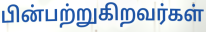
பின்பற்றுகிறவர்கள்